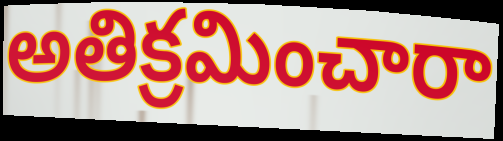
అతిక్రమించారా